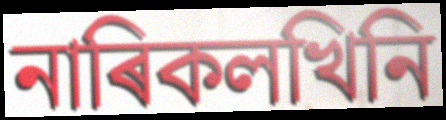
নাৰিকলখিনি